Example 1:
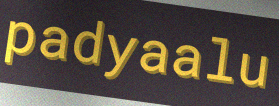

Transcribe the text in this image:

padyaalu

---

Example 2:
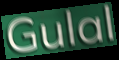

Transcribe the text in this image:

Gulal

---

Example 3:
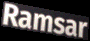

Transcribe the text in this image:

Ramsar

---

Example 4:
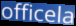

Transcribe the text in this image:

officela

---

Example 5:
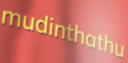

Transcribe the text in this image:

mudinthathu